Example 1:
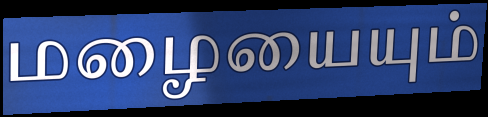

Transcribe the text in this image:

மழையையும்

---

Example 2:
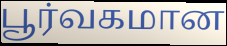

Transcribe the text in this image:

பூர்வகமான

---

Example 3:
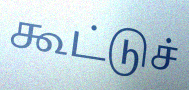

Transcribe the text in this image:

கூட்டுச்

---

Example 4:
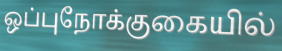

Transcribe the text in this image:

ஒப்புநோக்குகையில்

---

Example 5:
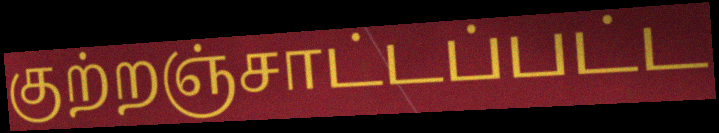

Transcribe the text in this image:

குற்றஞ்சாட்டப்பட்ட